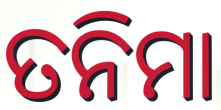
ତନିମା